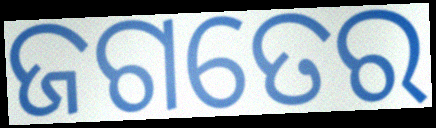
ଜଗତେର